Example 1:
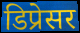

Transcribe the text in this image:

डिप्रेसर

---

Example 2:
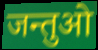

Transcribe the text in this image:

जन्तुओ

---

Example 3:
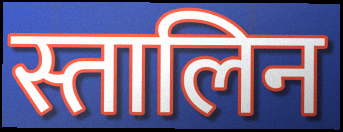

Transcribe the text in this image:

स्तालिन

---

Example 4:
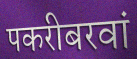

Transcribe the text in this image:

पकरीबरवां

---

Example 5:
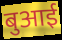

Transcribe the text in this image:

बुआई